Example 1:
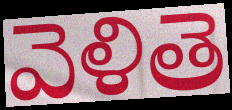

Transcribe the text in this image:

వెళితె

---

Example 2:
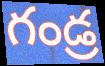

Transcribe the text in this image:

గండ్ర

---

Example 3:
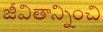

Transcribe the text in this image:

జీవితాన్నించి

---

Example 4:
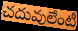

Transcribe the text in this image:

చదువులేంటీ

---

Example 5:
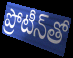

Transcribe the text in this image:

ప్రోటీన్‌తో